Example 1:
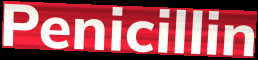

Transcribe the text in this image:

Penicillin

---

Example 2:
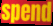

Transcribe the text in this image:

spend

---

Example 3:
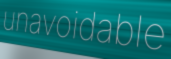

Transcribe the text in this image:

unavoidable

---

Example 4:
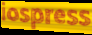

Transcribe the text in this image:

iospress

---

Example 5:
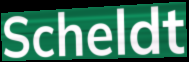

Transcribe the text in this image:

Scheldt